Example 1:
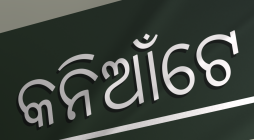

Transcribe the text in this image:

କନିଆଁଟେ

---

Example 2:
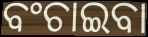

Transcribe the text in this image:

ବଂଚାଇବା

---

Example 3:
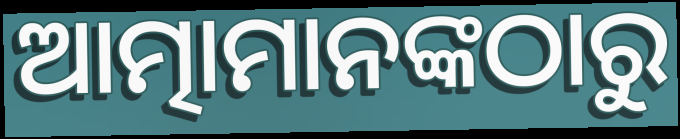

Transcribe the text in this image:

ଆତ୍ମାମାନଙ୍କଠାରୁ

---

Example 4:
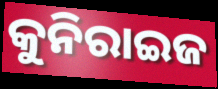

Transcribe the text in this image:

କୁନିରାଇଜ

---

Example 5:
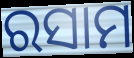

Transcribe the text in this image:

ରସାମ